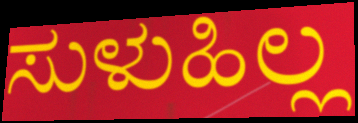
ಸುಳುಹಿಲ್ಲ